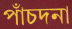
পাঁচদনা